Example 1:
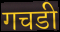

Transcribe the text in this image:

गचडी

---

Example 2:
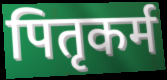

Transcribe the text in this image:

पितृकर्म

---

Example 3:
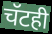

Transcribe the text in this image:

चॅटही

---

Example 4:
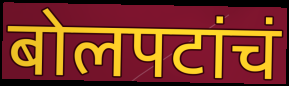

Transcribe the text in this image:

बोलपटांचं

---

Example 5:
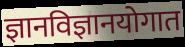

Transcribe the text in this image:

ज्ञानविज्ञानयोगात